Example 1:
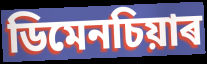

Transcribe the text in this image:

ডিমেনচিয়াৰ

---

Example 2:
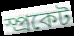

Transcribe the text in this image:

স্প্ৰকেট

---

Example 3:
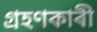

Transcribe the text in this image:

গ্ৰহণকাৰী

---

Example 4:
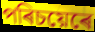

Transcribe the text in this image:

পৰিচয়েৰে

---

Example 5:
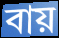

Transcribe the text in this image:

বায়